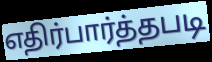
எதிர்பார்த்தபடி